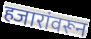
हजारांवरून